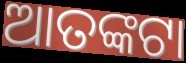
ଆତଙ୍କଟା